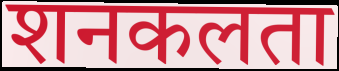
शनकलता